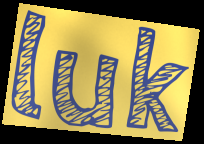
luk